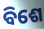
ବିଶେ